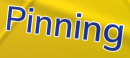
Pinning